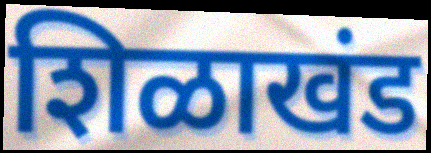
शिळाखंड